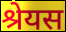
श्रेयस